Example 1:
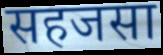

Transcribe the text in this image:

सहजसा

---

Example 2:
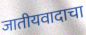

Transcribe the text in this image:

जातीयवादाचा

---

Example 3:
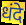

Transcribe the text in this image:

धंदे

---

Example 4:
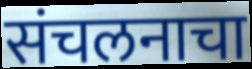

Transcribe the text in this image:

संचलनाचा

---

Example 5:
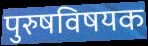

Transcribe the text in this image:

पुरुषविषयक